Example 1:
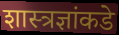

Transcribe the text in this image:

शास्त्रज्ञांकडे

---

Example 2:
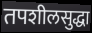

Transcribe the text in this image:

तपशीलसुद्धा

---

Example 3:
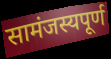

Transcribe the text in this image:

सामंजस्यपूर्ण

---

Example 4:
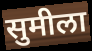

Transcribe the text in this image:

सुमीला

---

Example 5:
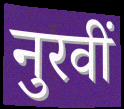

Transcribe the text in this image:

नुरवीं